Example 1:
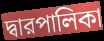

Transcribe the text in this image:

দ্বারপালিকা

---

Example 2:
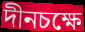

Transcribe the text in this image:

দীনচক্ষে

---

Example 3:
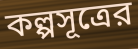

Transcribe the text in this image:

কল্পসূত্রের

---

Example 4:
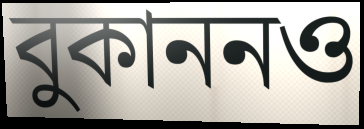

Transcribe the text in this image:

বুকাননও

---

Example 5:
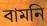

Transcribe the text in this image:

বামনি